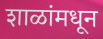
शाळांमधून